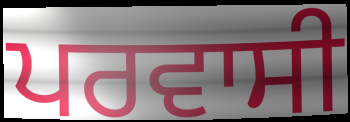
ਪਰਵਾਸੀ